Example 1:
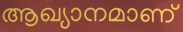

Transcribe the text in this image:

ആഖ്യാനമാണ്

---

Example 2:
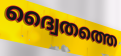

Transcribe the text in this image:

ദ്വൈതത്തെ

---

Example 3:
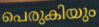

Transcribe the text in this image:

പെരുകിയും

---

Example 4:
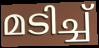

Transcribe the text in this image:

മടിച്ച്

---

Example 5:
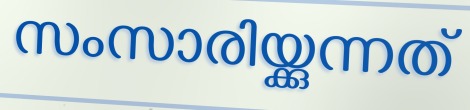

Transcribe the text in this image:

സംസാരിയ്ക്കുന്നത്